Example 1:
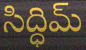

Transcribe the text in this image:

సిద్ధిమ్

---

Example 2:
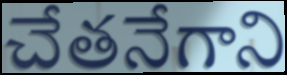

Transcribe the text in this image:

చేతనేగాని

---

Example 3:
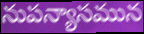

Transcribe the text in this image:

నుపన్యాసమున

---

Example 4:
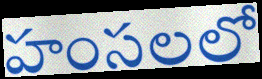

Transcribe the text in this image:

హంసలలో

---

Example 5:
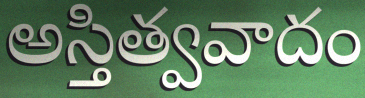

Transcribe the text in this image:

అస్తిత్వవాదం